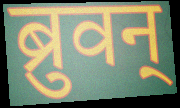
ब्रुवन्